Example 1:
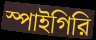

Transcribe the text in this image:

স্পাইগিরি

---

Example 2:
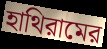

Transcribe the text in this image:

হাথিরামের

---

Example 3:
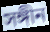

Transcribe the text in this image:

সঙ্গীন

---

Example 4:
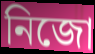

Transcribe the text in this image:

নিজো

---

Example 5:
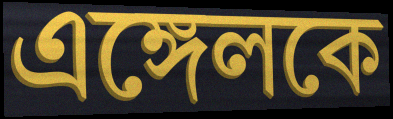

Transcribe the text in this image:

এঙ্গেলকে